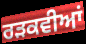
ਰੜਕਵੀਆਂ